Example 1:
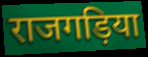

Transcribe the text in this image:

राजगड़िया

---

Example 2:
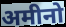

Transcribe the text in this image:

अमीनो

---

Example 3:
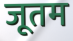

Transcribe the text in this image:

जूतम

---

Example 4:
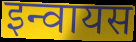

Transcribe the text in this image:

इन्वायस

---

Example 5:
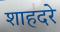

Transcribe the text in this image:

शाहदरे